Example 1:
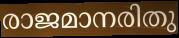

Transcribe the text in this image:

രാജമാനരിതു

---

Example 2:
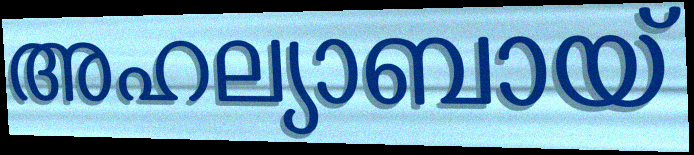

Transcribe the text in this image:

അഹല്യാബായ്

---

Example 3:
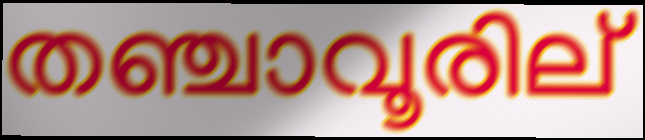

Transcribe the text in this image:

തഞ്ചാവൂരില്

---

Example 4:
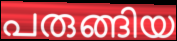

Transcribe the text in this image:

പരുങ്ങിയ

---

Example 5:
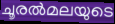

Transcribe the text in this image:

ചൂരൽമലയുടെ